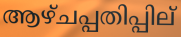
ആഴ്ചപ്പതിപ്പില്